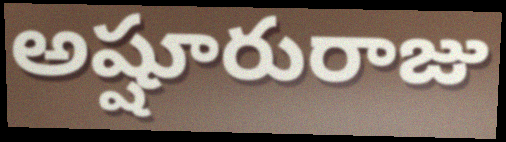
అష్షూరురాజు